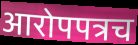
आरोपपत्रच